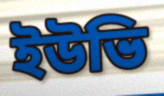
ইউভি